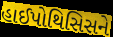
હાઈપોથિસિસને